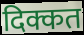
दिक्कत